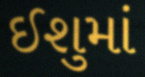
ઈશુમાં